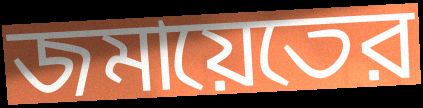
জমায়েতের